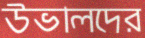
উভালদের